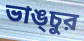
ভাঙ্চুর